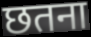
छतना